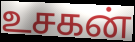
உசகன்